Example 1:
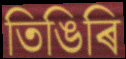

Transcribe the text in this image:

তিঙিৰি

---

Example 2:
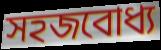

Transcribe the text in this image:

সহজবোধ্য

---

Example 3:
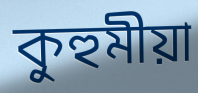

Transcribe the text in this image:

কুহুমীয়া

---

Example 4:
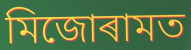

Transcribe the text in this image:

মিজোৰামত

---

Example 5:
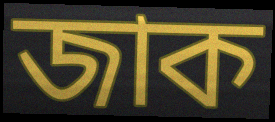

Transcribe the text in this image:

জাক